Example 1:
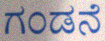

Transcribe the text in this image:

ಗಂಡನೆ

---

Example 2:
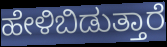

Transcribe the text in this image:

ಹೇಳಿಬಿಡುತ್ತಾರೆ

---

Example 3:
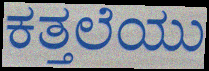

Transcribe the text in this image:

ಕತ್ತಲೆಯು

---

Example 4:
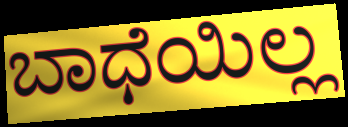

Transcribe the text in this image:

ಬಾಧೆಯಿಲ್ಲ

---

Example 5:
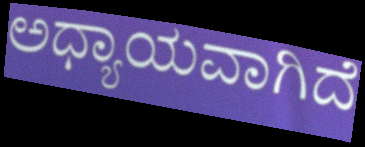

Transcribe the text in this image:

ಅಧ್ಯಾಯವಾಗಿದೆ